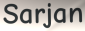
Sarjan